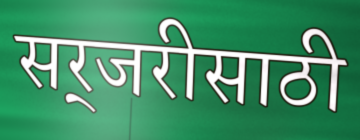
सर्जरीसाठी